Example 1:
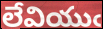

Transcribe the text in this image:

లేవియుఁ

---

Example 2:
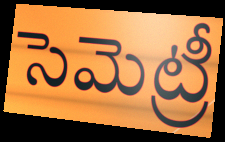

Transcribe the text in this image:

సెమెట్రీ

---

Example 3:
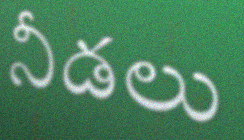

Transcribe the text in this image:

నీడలు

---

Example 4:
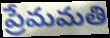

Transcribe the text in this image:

ప్రేమమతి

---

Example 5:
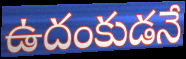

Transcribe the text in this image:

ఉదంకుడనే